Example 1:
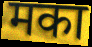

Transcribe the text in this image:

मका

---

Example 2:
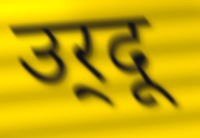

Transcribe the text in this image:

उर्दू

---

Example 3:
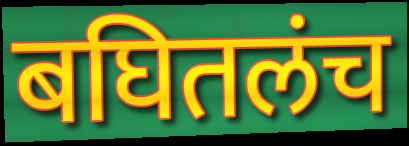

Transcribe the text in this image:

बघितलंच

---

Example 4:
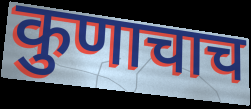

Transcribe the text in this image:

कुणाचाच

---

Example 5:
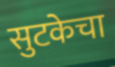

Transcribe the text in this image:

सुटकेचा